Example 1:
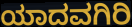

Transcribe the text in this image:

ಯಾದವಗಿರಿ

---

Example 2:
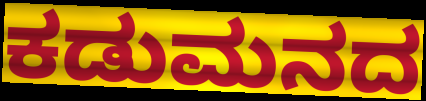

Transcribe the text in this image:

ಕಡುಮನದ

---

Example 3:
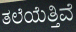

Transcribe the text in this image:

ತಲೆಯೆತ್ತಿವೆ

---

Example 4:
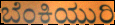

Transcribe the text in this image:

ಬೆಂಕಿಯುರಿ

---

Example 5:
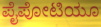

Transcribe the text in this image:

ಪೈಪೋಟಿಯೂ